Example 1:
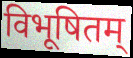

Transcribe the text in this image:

विभूषितम्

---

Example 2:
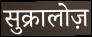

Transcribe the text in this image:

सुक्रालोज़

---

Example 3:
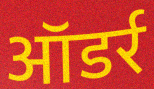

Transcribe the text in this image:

ऑडर्र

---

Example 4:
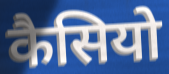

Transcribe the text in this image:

कैसियो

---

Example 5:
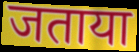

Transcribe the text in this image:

जताया